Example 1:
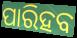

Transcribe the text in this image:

ପାରିହବ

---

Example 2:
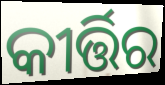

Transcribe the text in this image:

କୀର୍ତ୍ତିର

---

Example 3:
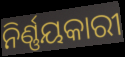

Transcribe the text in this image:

ନିର୍ଣ୍ଣୟକାରୀ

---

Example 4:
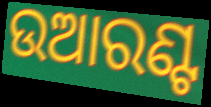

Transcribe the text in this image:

ଉଆରଣ୍ଟ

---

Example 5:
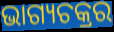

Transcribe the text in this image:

ଭାଗ୍ୟଚକ୍ରର